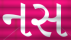
નસ